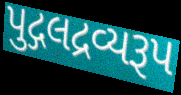
પુદ્ગલદ્રવ્યરૂપ